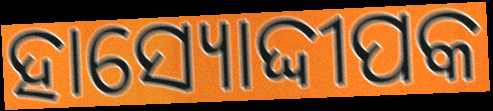
ହାସ୍ୟୋଦ୍ଦୀପକ